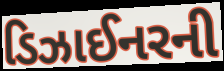
ડિઝાઈનરની